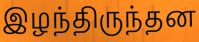
இழந்திருந்தன